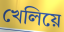
খেলিয়ে